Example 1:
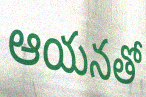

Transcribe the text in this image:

ఆయనతో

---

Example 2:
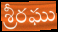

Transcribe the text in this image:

శ్రీరఘు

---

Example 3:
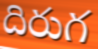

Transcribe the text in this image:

దిరుగ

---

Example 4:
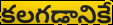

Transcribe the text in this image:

కలగడానికే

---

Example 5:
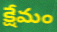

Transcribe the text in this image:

క్షేమం